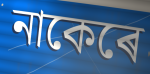
নাকেৰে